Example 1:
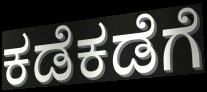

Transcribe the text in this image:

ಕಡೆಕಡೆಗೆ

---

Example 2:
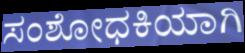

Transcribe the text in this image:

ಸಂಶೋಧಕಿಯಾಗಿ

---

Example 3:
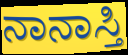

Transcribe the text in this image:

ನಾನಾಸ್ತಿ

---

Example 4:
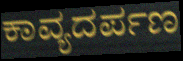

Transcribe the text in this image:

ಕಾವ್ಯದರ್ಪಣ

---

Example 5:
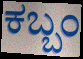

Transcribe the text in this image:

ಕಬ್ಬಂ